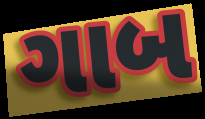
ગાબ